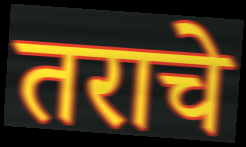
तराचे